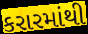
કરારમાંથી